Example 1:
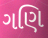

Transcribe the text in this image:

ગણિ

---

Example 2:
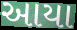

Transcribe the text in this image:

આયા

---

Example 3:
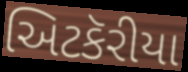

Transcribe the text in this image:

અિટકૅરીયા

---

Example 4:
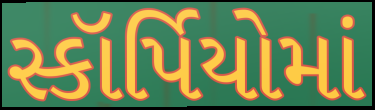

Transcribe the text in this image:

સ્કૉર્પિયોમાં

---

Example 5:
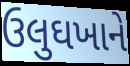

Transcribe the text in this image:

ઉલુઘખાને